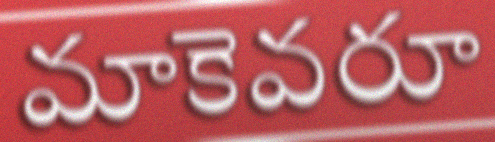
మాకెవరూ